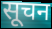
सूचन